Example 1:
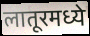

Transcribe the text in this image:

लातूरमध्ये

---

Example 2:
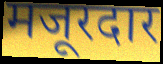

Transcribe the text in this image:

मजूरदार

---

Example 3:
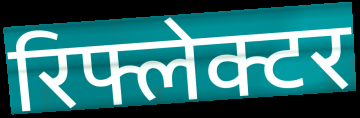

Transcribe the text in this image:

रिफ्लेक्टर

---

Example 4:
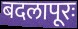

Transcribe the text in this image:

बदलापूरः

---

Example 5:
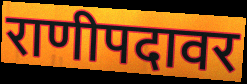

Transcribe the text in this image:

राणीपदावर